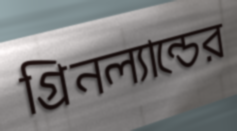
গ্রিনল্যান্ডের